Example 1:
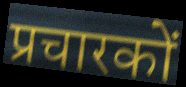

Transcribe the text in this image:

प्रचारकों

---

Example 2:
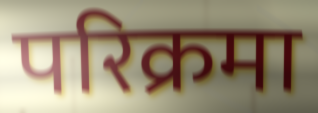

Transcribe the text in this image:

परिक्रमा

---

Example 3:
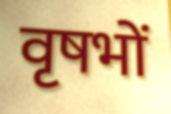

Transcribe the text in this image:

वृषभों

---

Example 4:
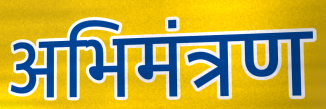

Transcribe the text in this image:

अभिमंत्रण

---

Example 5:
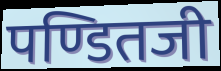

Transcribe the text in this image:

पण्डितजी